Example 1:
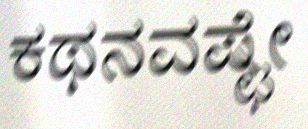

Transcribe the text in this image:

ಕಥನವಷ್ಟೇ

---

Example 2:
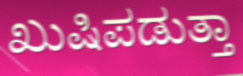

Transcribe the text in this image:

ಖುಷಿಪಡುತ್ತಾ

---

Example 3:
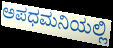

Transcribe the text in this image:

ಅಪಧಮನಿಯಲ್ಲಿ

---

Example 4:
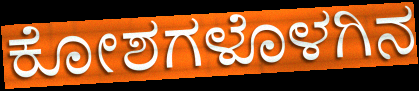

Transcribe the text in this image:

ಕೋಶಗಳೊಳಗಿನ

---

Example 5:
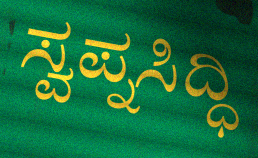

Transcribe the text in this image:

ಸ್ವಪ್ನಸಿದ್ಧಿ